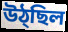
উঠ্ছিল